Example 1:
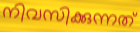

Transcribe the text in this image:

നിവസിക്കുന്നത്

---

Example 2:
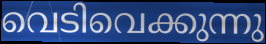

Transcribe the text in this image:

വെടിവെക്കുന്നു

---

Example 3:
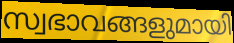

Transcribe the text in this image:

സ്വഭാവങ്ങളുമായി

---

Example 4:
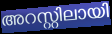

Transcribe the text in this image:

അറസ്റ്റിലായി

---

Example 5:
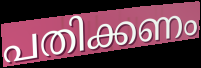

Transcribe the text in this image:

പതിക്കണം